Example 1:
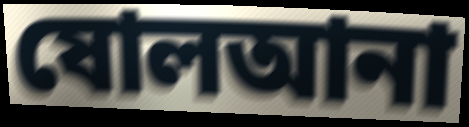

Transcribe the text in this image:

ষোলআনা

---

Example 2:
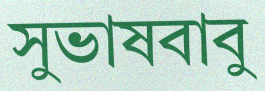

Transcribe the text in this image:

সুভাষবাবু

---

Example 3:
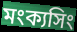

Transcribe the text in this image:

মংক্যসিং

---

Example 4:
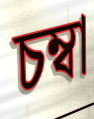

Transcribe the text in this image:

চম্বা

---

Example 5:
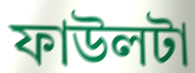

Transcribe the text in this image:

ফাউলটা